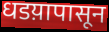
धडय़ापासून